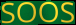
SOOS